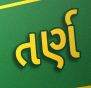
તર્ણ